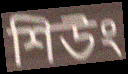
শিউং